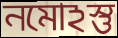
নমোঽস্তু